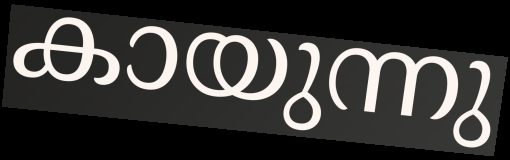
കായുന്നു